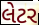
લેટર